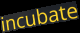
incubate